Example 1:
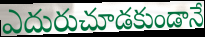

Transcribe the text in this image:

ఎదురుచూడకుండానే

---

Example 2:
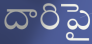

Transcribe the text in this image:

దారిపై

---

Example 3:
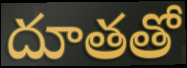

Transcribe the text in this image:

దూతతో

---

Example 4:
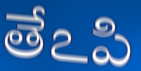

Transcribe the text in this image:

తేఽపి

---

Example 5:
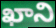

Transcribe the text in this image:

ఖాని